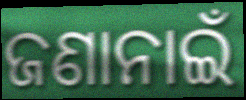
ଜଣାନାଇଁ